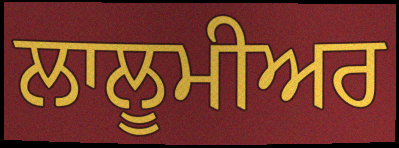
ਲਾਲੂਮੀਅਰ